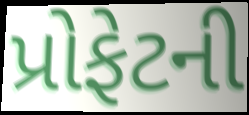
પ્રોફેટની